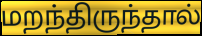
மறந்திருந்தால்